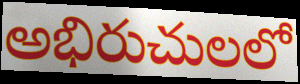
అభిరుచులలో